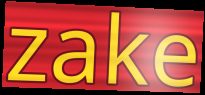
zake